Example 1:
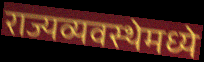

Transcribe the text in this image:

राज्यव्यवस्थेमध्ये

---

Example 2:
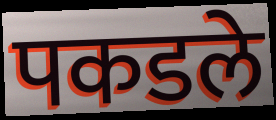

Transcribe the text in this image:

पकडले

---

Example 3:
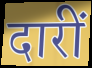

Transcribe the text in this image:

दारीं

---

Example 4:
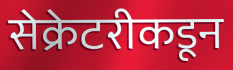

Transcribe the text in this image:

सेक्रेटरीकडून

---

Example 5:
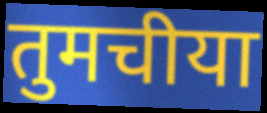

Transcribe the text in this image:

तुमचीया